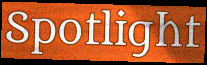
Spotlight